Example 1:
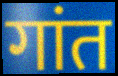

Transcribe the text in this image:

गांत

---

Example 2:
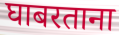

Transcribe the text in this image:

घाबरताना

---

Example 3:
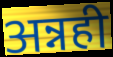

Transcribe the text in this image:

अन्नही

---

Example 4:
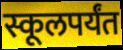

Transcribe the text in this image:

स्कूलपर्यंत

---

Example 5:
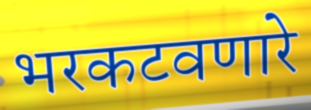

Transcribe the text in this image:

भरकटवणारे